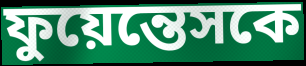
ফুয়েন্তেসকে